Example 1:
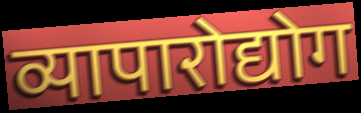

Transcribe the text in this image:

व्यापारोद्योग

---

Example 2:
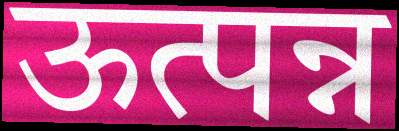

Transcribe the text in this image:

ऊत्पन्न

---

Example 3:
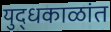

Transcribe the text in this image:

युद्धकाळांत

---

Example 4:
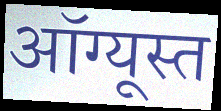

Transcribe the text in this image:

ऑग्यूस्त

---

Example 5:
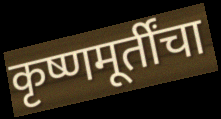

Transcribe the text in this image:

कृष्णमूर्तींचा